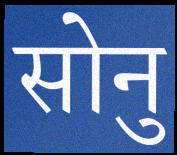
सोनु